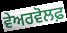
ਵੇਅਰਵੋਲਫ਼